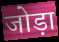
जोड़ा